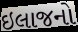
ઇલાજનો